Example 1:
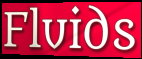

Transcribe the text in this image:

Fluids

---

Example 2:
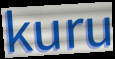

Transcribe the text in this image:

kuru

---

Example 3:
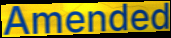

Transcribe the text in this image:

Amended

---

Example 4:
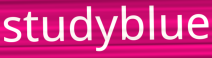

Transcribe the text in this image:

studyblue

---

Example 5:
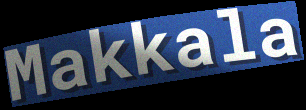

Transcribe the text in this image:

Makkala